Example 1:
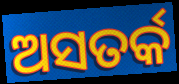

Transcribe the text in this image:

ଅସତର୍କ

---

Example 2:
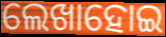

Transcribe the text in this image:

ଲେଖାହୋଇ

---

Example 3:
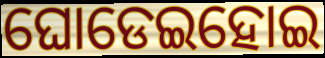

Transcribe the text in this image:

ଘୋଡେଇହୋଇ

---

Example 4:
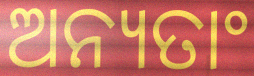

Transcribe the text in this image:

ଅନ୍ୟତାଂ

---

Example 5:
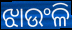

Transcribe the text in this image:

ଝାଉଂଳି